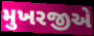
મુખરજીએ